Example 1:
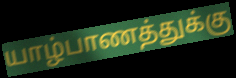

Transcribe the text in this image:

யாழ்பாணத்துக்கு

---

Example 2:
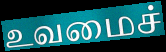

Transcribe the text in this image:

உவமைச்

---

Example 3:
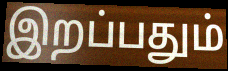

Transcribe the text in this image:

இறப்பதும்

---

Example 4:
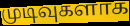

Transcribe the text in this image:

முடிவுகளாக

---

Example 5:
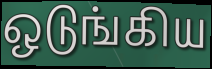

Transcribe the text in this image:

ஒடுங்கிய